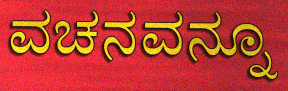
ವಚನವನ್ನೂ